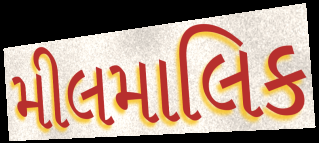
મીલમાલિક